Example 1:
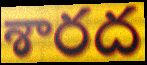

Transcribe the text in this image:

శారద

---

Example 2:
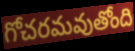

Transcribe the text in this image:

గోచరమవుతోంది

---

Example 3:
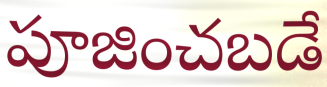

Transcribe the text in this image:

పూజించబడే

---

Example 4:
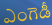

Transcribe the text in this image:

ఎంగెడీ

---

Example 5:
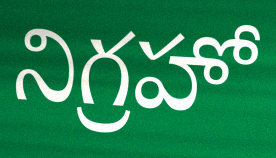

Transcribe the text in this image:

నిగ్రహో